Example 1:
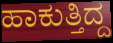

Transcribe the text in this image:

ಹಾಕುತ್ತಿದ್ದ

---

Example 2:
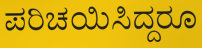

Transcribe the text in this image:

ಪರಿಚಯಿಸಿದ್ದರೂ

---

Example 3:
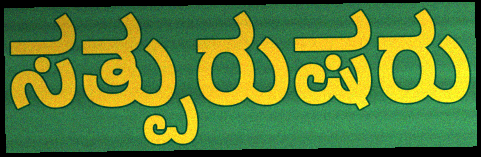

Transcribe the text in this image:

ಸತ್ಪುರುಷರು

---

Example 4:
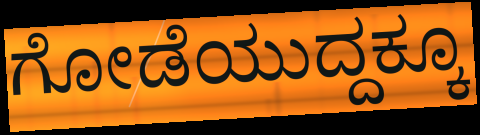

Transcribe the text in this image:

ಗೋಡೆಯುದ್ದಕ್ಕೂ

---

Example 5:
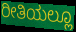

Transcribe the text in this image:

ರೀತಿಯಲ್ಲೂ